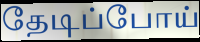
தேடிப்போய்